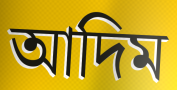
আদিম